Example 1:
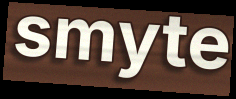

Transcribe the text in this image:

smyte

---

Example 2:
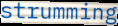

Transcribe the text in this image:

strumming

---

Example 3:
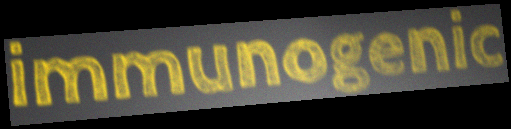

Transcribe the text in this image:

immunogenic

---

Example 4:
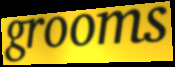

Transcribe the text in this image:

grooms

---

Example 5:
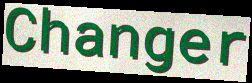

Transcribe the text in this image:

Changer